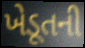
ખેડૂતની